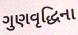
ગુણવૃદ્ધિના